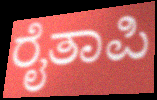
ರೈತಾಪಿ